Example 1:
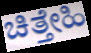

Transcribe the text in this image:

ಚಿತ್ತೇಹಿ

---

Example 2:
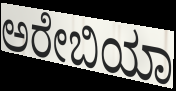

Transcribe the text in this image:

ಅರೇಬಿಯಾ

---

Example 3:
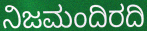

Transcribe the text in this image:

ನಿಜಮಂದಿರದಿ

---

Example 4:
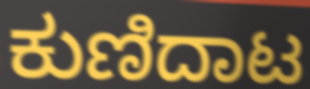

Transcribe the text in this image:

ಕುಣಿದಾಟ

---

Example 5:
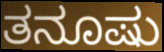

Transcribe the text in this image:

ತನೂಷು